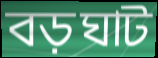
বড়ঘাট